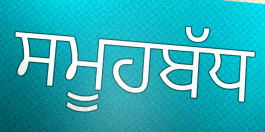
ਸਮੂਹਬੱਧ